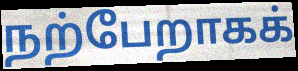
நற்பேறாகக்